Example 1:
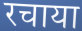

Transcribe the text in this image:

रचाया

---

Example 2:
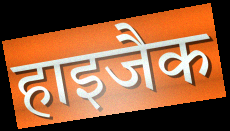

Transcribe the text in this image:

हाइजैक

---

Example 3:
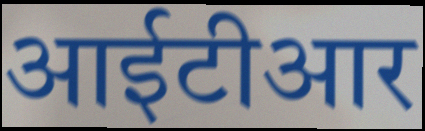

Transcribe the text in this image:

आईटीआर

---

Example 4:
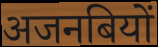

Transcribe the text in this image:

अजनबियों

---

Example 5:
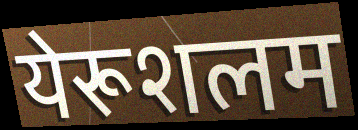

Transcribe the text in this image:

येरूशलम